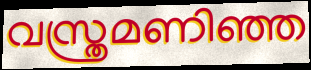
വസ്ത്രമണിഞ്ഞ